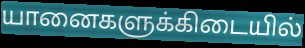
யானைகளுக்கிடையில்